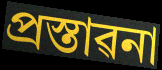
প্ৰস্তাৱনা